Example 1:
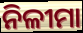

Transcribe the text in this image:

ନିଳୀମା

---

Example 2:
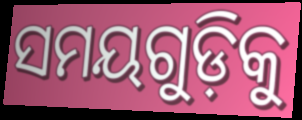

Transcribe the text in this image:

ସମୟଗୁଡ଼ିକୁ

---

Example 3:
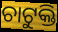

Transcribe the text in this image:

ଚାଟୁକ୍ତି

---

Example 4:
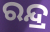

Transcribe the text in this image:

ରନ୍ଦ୍ର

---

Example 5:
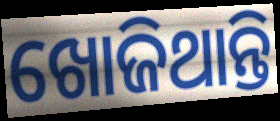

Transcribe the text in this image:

ଖୋଜିଥାନ୍ତି